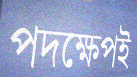
পদক্ষেপই